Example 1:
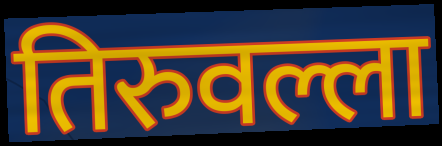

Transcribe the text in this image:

तिरुवल्ला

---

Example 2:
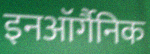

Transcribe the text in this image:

इनऑर्गैनिक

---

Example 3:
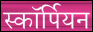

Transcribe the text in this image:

स्कॉर्पियन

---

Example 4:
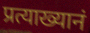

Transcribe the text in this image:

प्रत्याख्यानं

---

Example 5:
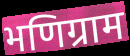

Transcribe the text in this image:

भणिग्राम